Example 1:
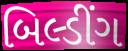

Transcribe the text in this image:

બિલ્ડીંગ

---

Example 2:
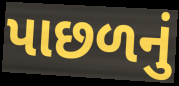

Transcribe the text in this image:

પાછળનું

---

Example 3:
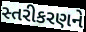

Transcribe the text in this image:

સ્તરીકરણને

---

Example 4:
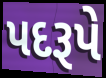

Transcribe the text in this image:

પદરૂપે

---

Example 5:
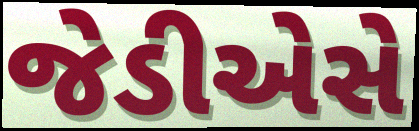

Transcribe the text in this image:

જેડીએસે